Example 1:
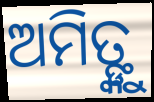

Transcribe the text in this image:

ଅମିତ୍ଙ୍କୁ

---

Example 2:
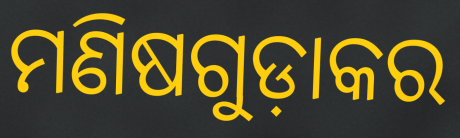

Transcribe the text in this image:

ମଣିଷଗୁଡ଼ାକର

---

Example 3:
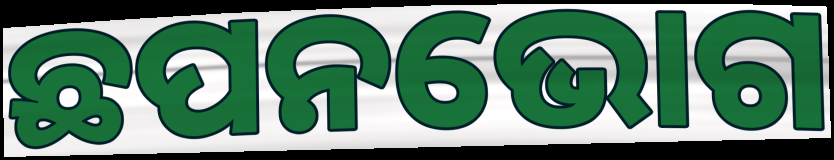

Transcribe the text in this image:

ଛପନଭୋଗ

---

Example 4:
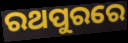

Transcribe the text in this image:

ରଥପୁରରେ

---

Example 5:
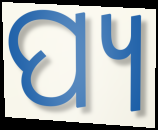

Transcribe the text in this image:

ପ୍ୟ